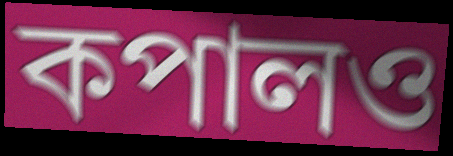
কপালও